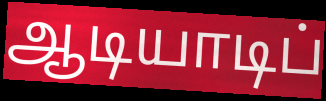
ஆடியாடிப்